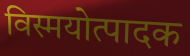
विस्मयोत्पादक